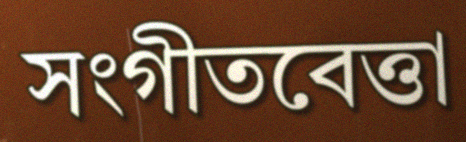
সংগীতবেত্তা